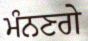
ਮੰਨਣਗੇ